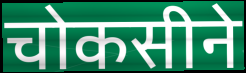
चोकसीने